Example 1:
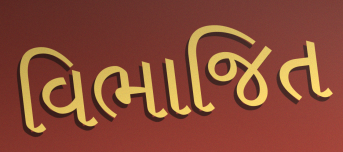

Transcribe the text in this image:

વિભાજિત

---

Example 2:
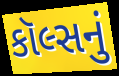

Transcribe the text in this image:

કૉલ્સનું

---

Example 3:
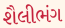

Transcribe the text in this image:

શૈલીભંગ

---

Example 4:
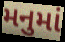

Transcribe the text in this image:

મનુમાં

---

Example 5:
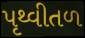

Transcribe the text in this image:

પૃથ્વીતળ